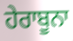
ਹੇਰਾਬੂਨਾ